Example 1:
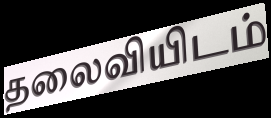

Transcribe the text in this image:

தலைவியிடம்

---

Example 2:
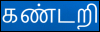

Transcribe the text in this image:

கண்டறி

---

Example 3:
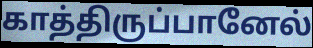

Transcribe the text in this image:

காத்திருப்பானேல்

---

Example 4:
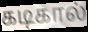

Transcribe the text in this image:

கடிகால்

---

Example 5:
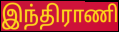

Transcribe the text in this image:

இந்திராணி